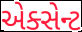
એક્સેન્ટ